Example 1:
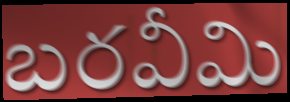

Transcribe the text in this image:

బరవీమి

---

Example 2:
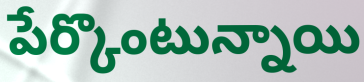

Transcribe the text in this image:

పేర్కొంటున్నాయి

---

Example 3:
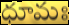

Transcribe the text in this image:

ధూమః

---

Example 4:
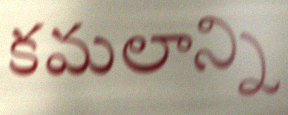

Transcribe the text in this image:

కమలాన్ని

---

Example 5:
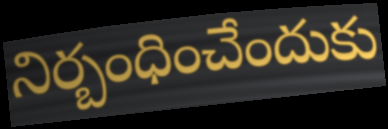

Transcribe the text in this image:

నిర్బంధించేందుకు